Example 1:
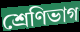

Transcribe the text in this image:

শ্রেণিভাগ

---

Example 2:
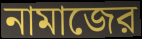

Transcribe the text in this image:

নামাজের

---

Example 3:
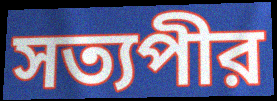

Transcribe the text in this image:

সত্যপীর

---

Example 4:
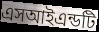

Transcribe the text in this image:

এসআইএন্ডটি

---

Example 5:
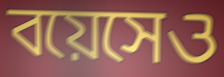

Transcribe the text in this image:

বয়েসেও